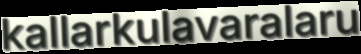
kallarkulavaralaru